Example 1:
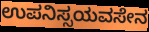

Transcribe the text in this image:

ಉಪನಿಸ್ಸಯವಸೇನ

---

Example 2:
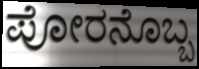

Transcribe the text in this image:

ಪೋರನೊಬ್ಬ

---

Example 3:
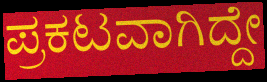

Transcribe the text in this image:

ಪ್ರಕಟವಾಗಿದ್ದೇ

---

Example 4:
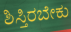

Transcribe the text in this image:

ಶಿಸ್ತಿರಬೇಕು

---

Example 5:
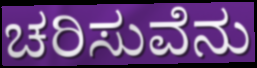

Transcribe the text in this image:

ಚರಿಸುವೆನು